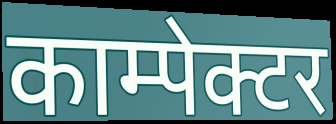
काम्पेक्टर